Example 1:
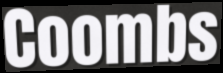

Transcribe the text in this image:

Coombs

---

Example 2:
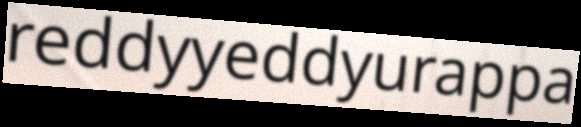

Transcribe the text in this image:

reddyyeddyurappa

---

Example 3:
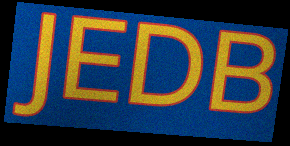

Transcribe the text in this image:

JEDB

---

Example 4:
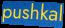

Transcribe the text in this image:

pushkal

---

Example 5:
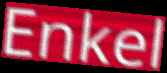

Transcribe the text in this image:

Enkel